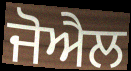
ਜੋਐਲ